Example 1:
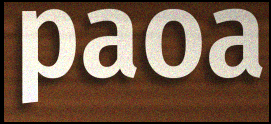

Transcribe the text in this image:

paoa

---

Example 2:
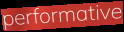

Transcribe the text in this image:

performative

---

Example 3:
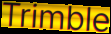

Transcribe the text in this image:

Trimble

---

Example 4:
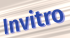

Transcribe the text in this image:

Invitro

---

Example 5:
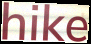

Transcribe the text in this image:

hike